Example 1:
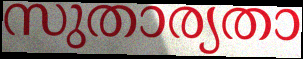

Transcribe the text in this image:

സുതാര്യതാ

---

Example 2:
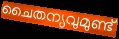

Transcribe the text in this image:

ചൈതന്യവുമുണ്ട്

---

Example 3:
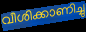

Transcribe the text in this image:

വീശിക്കാണിച്ചു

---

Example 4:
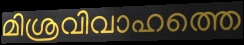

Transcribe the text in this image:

മിശ്രവിവാഹത്തെ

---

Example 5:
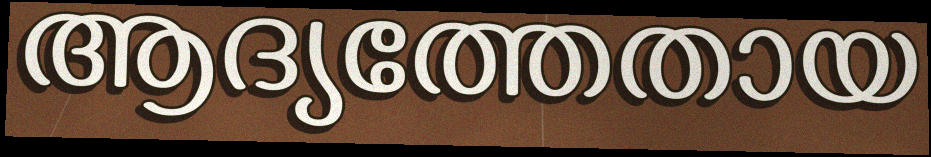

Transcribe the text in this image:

ആദ്യത്തേതായ